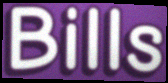
Bills